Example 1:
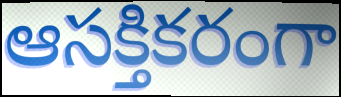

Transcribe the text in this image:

ఆసక్తికరంగా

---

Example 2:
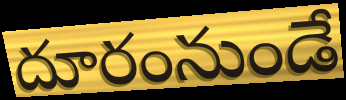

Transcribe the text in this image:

దూరంనుండే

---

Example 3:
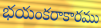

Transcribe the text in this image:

భయంకరాకారము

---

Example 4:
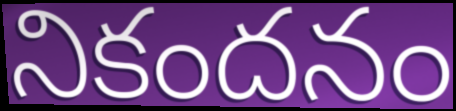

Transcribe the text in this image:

నికందనం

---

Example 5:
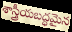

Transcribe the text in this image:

శాస్త్రీయబద్ధమైన